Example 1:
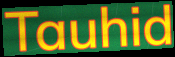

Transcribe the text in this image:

Tauhid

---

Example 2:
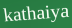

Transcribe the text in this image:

kathaiya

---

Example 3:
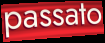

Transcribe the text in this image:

passato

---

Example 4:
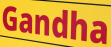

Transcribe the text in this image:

Gandha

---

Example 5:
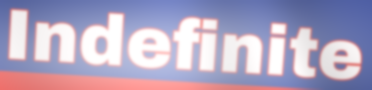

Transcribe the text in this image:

Indefinite